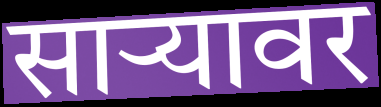
साऱ्यावर